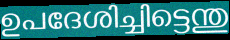
ഉപദേശിച്ചിട്ടെന്തു